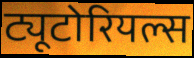
ट्यूटोरियल्स